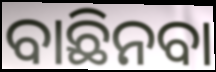
ବାଛିନବା